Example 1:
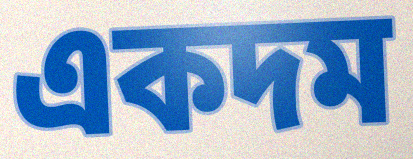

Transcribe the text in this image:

একদম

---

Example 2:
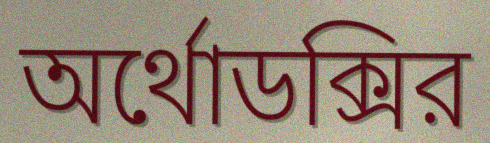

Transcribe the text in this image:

অর্থোডক্সির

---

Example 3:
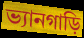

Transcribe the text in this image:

ভ্যানগাড়ি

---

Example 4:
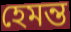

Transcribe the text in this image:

হেমন্ত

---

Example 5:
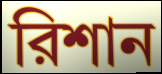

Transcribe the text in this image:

রিশান